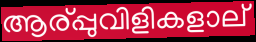
ആര്പ്പുവിളികളാല്